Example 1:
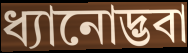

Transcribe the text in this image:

ধ্যানোদ্ভবা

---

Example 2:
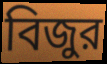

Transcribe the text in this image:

বিজুর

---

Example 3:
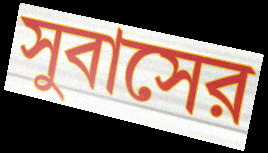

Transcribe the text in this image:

সুবাসের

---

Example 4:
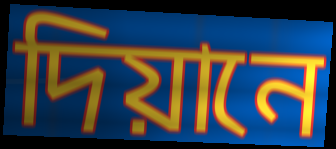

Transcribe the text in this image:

দিয়ানে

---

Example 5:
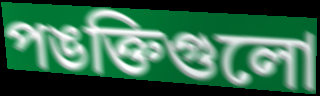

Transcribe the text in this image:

পঙক্তিগুলো